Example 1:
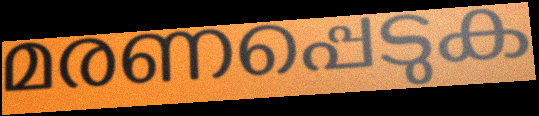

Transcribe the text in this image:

മരണപ്പെടുക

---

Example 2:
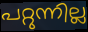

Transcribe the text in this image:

പറ്റുന്നില്ല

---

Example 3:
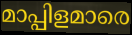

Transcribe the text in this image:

മാപ്പിളമാരെ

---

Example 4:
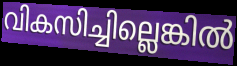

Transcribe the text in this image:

വികസിച്ചില്ലെങ്കിൽ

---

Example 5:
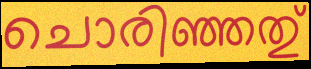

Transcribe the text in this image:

ചൊരിഞ്ഞതു്